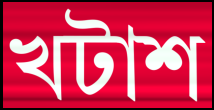
খটাশ